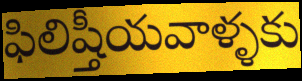
ఫిలిష్తీయవాళ్ళకు